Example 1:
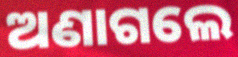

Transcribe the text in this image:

ଅଣାଗଲେ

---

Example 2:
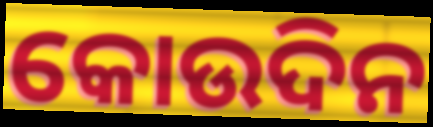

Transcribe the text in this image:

କୋଉଦିନ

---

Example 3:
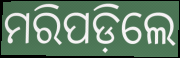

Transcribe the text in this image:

ମରିପଡ଼ିଲେ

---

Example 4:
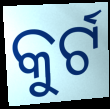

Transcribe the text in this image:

କୁର୍ଟ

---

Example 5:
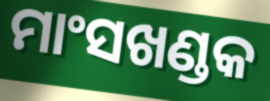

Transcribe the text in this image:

ମାଂସଖଣ୍ଡକ